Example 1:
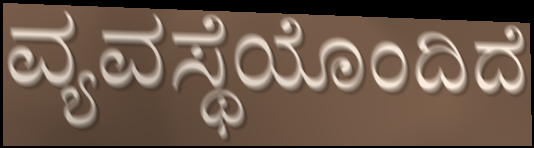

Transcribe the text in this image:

ವ್ಯವಸ್ಥೆಯೊಂದಿದೆ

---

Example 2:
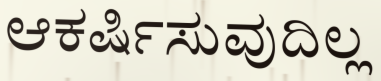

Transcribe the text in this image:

ಆಕರ್ಷಿಸುವುದಿಲ್ಲ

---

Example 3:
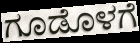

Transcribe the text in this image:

ಗೂಡೊಳಗೆ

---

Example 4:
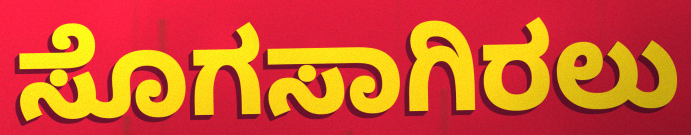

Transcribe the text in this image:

ಸೊಗಸಾಗಿರಲು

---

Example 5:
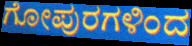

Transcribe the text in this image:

ಗೋಪುರಗಳಿಂದ